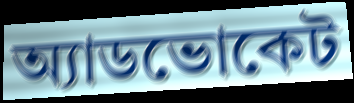
অ্যাডভোকেট